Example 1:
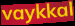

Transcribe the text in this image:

vaykkal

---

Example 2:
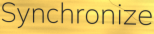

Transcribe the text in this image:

Synchronize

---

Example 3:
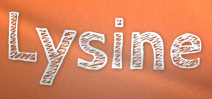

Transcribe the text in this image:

Lysine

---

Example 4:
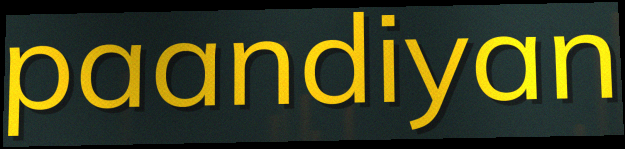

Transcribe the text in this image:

paandiyan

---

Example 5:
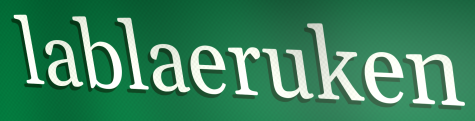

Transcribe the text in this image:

lablaeruken